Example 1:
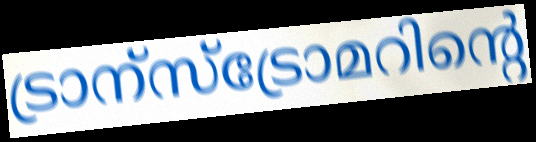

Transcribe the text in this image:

ട്രാന്സ്ട്രോമറിന്റെ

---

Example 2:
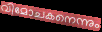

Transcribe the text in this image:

വിമോചകനെന്നും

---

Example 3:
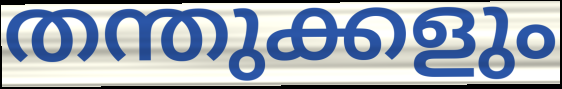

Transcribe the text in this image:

തന്തുക്കളും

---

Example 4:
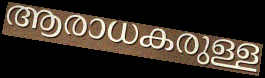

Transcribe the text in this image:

ആരാധകരുള്ള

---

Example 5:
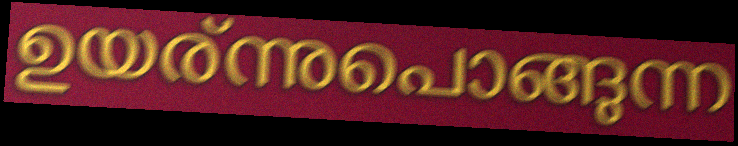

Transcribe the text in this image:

ഉയര്ന്നുപൊങ്ങുന്ന